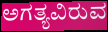
ಅಗತ್ಯವಿರುವ